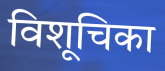
विशूचिका